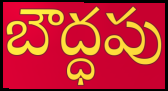
బౌద్ధపు